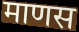
माणस